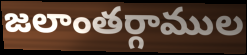
జలాంతర్గాముల